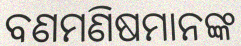
ବଣମଣିଷମାନଙ୍କ